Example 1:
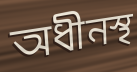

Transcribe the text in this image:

অধীনস্থ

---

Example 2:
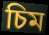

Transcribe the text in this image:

চিম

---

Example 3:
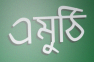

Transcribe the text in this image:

এমুঠি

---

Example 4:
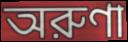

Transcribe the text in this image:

অৰুণা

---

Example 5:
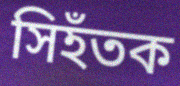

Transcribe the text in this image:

সিহঁতক